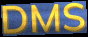
DMS